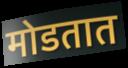
मोडतात